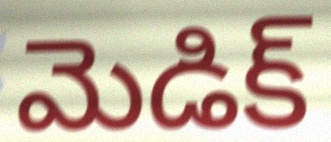
మెడిక్